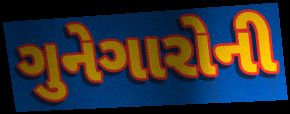
ગુનેગારોની